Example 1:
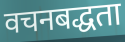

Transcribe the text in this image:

वचनबद्धता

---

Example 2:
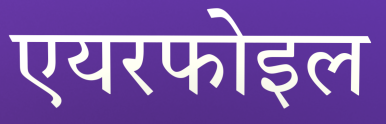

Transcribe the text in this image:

एयरफोइल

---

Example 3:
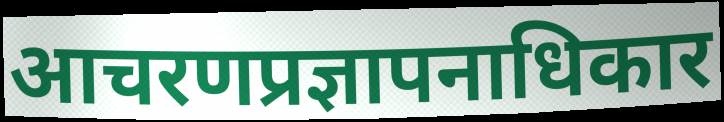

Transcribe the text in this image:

आचरणप्रज्ञापनाधिकार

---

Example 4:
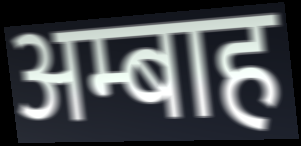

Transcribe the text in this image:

अम्बाह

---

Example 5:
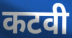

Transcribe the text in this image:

कटवी